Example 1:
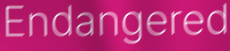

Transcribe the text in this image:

Endangered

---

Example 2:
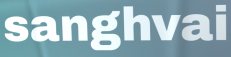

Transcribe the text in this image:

sanghvai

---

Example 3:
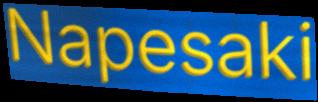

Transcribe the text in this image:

Napesaki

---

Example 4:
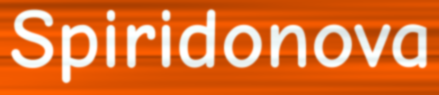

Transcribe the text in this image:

Spiridonova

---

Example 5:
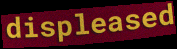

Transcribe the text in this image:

displeased